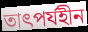
তাৎপর্যহীন